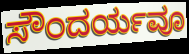
ಸೌಂದರ್ಯವೂ